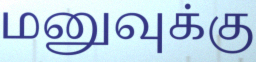
மனுவுக்கு